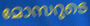
മോസറുടെ